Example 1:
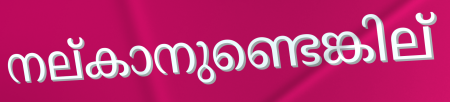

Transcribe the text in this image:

നല്കാനുണ്ടെങ്കില്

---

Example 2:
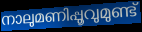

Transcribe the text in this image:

നാലുമണിപ്പൂവുമുണ്ട്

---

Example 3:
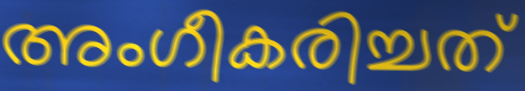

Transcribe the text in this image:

അംഗീകരിച്ചത്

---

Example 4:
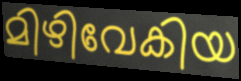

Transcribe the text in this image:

മിഴിവേകിയ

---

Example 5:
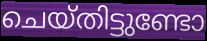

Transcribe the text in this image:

ചെയ്തിട്ടുണ്ടോ